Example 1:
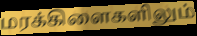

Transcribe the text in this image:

மரக்கிளைகளிலும்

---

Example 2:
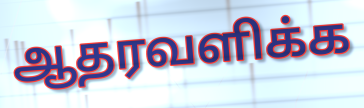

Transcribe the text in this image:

ஆதரவளிக்க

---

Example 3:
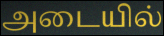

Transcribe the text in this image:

அடையில்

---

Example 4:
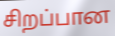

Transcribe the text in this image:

சிறப்பான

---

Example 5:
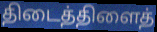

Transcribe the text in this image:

திடைத்திளைத்